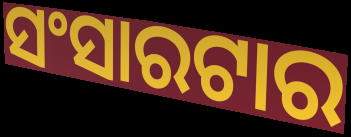
ସଂସାରଟାର